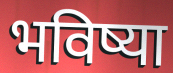
भविष्या